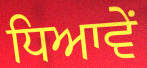
ਧਿਆਵੇਂ